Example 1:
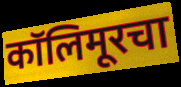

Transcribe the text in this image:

कॉलिमूरचा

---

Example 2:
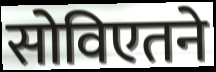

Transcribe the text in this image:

सोविएतने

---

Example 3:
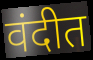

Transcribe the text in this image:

वंदीत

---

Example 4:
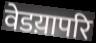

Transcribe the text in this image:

वेडय़ापरि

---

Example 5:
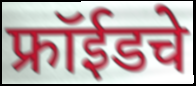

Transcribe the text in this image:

फ्रॉईडचे